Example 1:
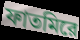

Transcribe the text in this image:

ফাতমিরে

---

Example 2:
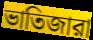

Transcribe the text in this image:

ভাতিজারা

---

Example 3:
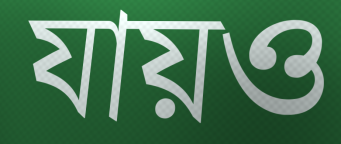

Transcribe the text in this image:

যায়ও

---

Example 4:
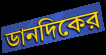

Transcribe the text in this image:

ডানদিকের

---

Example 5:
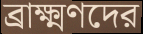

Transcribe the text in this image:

ব্রাক্ষ্মণদের